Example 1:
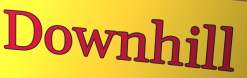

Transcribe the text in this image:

Downhill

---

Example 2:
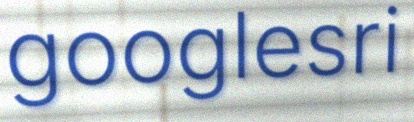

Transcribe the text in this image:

googlesri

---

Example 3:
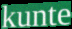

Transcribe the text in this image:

kunte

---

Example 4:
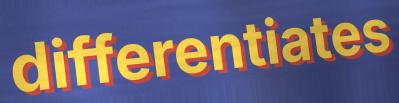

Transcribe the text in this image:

differentiates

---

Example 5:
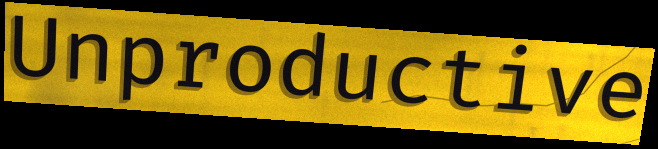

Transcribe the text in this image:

Unproductive